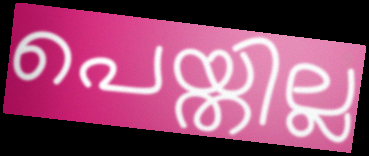
പെയ്തില്ല